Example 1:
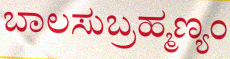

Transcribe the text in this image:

ಬಾಲಸುಬ್ರಹ್ಮಣ್ಯಂ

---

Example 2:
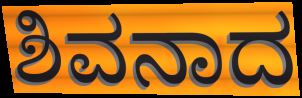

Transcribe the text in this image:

ಶಿವನಾದ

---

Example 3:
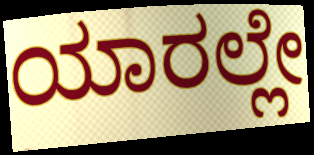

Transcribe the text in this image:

ಯಾರಲ್ಲೇ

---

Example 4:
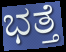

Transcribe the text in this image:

ಭತ್ತೆ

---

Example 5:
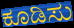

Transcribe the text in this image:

ಕೂಡಿಸು